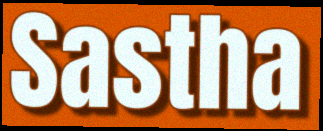
Sastha